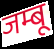
जम्बू